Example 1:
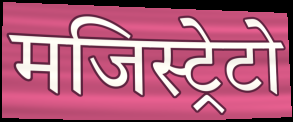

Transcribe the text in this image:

मजिस्ट्रेटो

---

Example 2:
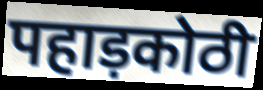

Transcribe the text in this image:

पहाड़कोठी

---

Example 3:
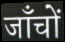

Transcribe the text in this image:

जाँचों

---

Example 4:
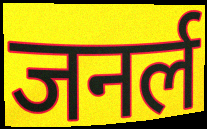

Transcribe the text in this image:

जनर्ल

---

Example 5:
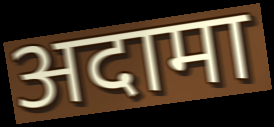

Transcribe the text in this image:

अदामा